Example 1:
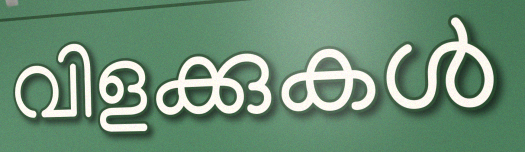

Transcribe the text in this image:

വിളക്കുകൾ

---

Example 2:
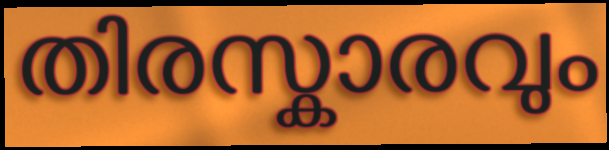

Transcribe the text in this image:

തിരസ്കാരവും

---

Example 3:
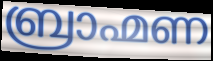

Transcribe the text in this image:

ബ്രാഹ്മണ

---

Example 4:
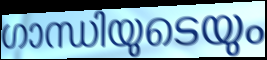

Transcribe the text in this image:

ഗാന്ധിയുടെയും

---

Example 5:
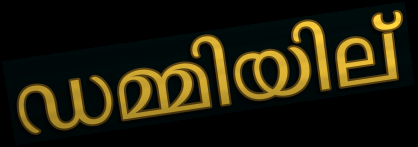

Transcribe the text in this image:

ഡമ്മിയില്